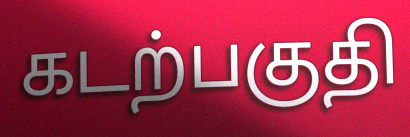
கடற்பகுதி